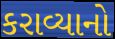
કરાવ્યાનો